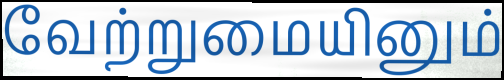
வேற்றுமையினும்